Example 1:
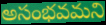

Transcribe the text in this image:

అసంభవమని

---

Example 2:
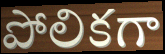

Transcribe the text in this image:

పోలికగా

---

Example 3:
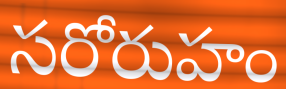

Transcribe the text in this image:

సరోరుహం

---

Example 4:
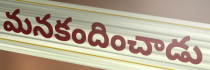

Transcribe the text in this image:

మనకందించాడు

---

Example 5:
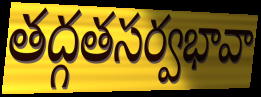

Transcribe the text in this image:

తద్గతసర్వభావా